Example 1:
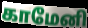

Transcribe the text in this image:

காமேனி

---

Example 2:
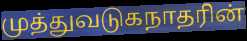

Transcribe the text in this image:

முத்துவடுகநாதரின்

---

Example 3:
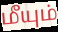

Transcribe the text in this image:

மீயும்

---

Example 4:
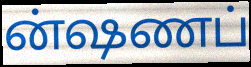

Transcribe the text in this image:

ன்ஷணப்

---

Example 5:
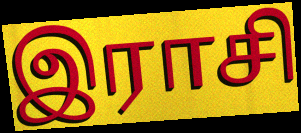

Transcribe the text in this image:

இராசி